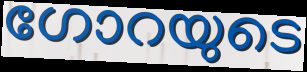
ഗോറയുടെ